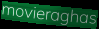
movieraghas